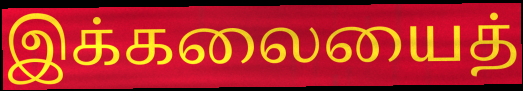
இக்கலையைத்